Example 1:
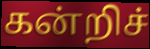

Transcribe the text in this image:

கன்றிச்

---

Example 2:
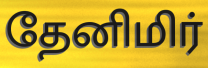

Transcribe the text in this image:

தேனிமிர்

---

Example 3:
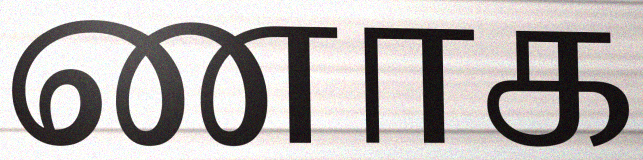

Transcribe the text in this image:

ணாக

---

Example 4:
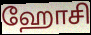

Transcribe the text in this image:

ஹோசி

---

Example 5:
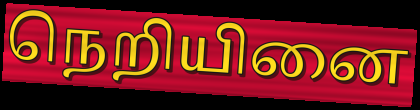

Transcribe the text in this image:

நெறியினை